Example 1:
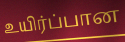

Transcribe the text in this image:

உயிர்ப்பான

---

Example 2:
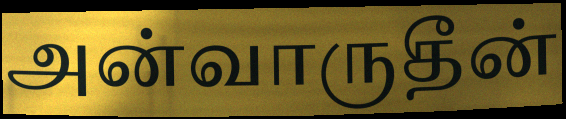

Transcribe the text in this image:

அன்வாருதீன்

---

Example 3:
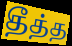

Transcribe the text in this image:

தீத்த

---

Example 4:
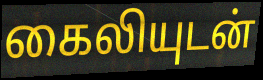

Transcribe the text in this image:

கைலியுடன்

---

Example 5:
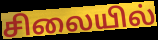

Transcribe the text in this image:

சிலையில்